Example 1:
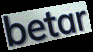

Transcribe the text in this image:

betar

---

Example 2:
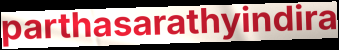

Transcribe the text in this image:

parthasarathyindira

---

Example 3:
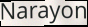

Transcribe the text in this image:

Narayon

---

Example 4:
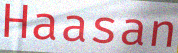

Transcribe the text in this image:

Haasan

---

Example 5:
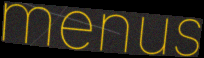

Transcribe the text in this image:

menus